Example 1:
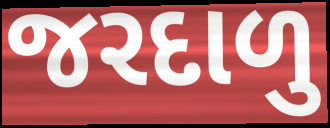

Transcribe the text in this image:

જરદાળુ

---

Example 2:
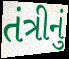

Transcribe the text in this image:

તંત્રીનું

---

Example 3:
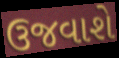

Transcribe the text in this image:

ઉજવાશે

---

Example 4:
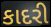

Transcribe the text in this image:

કાદરી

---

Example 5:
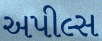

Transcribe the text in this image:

અપીલ્સ